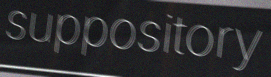
suppository